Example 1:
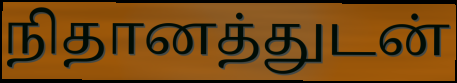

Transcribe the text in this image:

நிதானத்துடன்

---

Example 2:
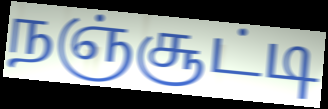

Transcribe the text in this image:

நஞ்சூட்டி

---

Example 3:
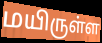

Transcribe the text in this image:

மயிருள்ள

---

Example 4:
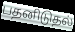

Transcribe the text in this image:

பதனிடுதல்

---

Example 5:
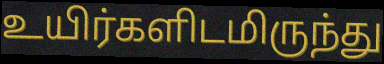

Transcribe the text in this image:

உயிர்களிடமிருந்து